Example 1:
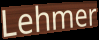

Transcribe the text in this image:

Lehmer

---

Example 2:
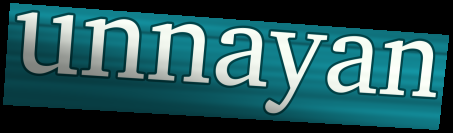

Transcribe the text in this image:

unnayan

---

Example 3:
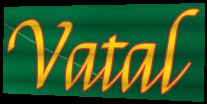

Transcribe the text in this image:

Vatal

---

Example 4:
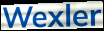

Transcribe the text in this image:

Wexler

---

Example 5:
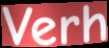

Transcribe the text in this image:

Verh